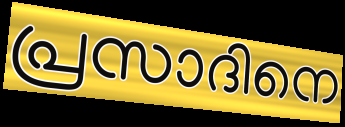
പ്രസാദിനെ